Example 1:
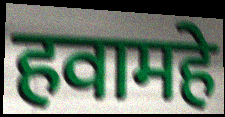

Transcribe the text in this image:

हवामहे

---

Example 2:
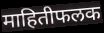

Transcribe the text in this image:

माहितीफलक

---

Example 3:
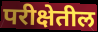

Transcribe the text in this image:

परीक्षेतील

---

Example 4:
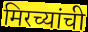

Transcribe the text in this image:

मिरच्यांची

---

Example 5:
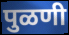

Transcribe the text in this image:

पुळणी